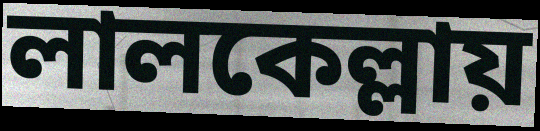
লালকেল্লায়